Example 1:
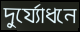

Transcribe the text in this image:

দুর্য্যোধনে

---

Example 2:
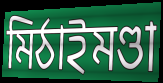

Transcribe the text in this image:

মিঠাইমণ্ডা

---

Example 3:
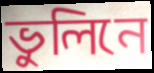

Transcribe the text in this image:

ভুলিনে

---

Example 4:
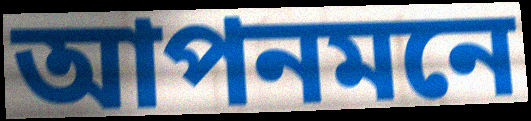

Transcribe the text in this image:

আপনমনে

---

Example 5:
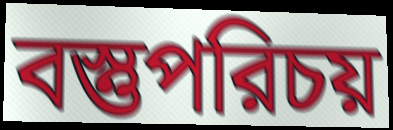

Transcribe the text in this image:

বস্তুপরিচয়